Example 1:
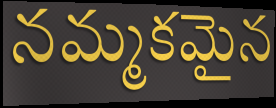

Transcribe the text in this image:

నమ్మకమైన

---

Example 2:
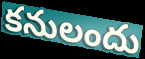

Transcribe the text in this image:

కనులందు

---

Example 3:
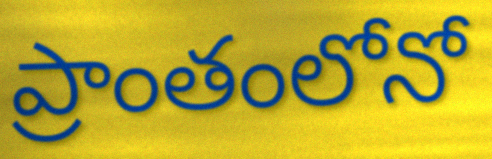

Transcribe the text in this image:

ప్రాంతంలోనో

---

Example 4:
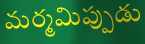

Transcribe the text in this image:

మర్మమిప్పుడు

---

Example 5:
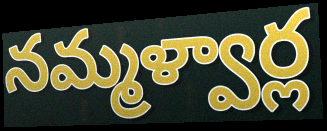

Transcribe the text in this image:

నమ్మళ్వార్ల